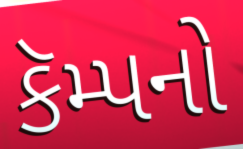
કૅમ્પનો